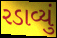
રડાવ્યું